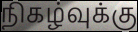
நிகழ்வுக்கு